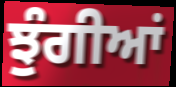
ਝੁੰਗੀਆਂ